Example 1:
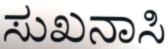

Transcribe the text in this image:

ಸುಖನಾಸಿ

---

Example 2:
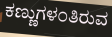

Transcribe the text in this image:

ಕಣ್ಣುಗಳಂತಿರುವ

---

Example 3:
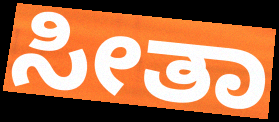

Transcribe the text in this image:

ಸೀತಾ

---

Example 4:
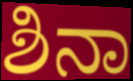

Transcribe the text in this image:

ಶಿನಾ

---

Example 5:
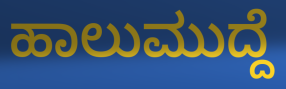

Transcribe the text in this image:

ಹಾಲುಮುದ್ದೆ